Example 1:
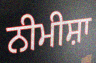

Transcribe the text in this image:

ਨੀਮੀਸ਼ਾ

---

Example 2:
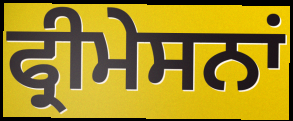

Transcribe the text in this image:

ਫ੍ਰੀਮੇਸਨਾਂ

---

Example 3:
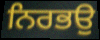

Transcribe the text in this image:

ਨਿਰਭਉ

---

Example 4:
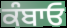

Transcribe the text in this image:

ਕੰਬਾਓ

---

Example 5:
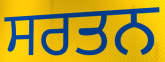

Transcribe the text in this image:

ਸਰਤਨ